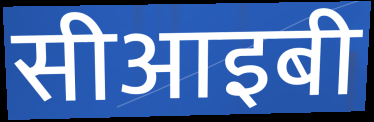
सीआइबी